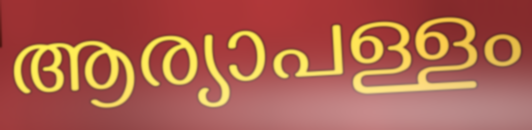
ആര്യാപള്ളം